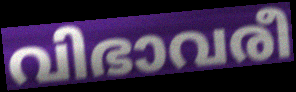
വിഭാവരീ